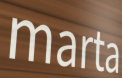
marta